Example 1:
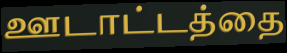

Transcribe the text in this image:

ஊடாட்டத்தை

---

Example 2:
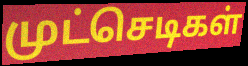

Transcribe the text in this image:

முட்செடிகள்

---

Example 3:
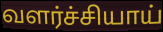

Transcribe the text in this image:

வளர்ச்சியாய்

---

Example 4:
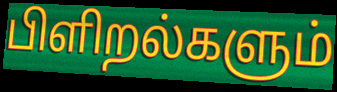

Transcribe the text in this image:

பிளிறல்களும்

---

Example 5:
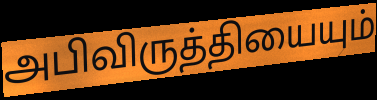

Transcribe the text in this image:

அபிவிருத்தியையும்